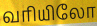
வரியிலோ